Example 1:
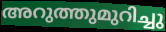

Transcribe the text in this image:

അറുത്തുമുറിച്ചു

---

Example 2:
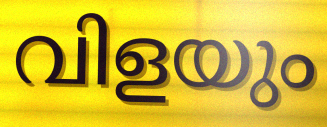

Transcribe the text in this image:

വിളയും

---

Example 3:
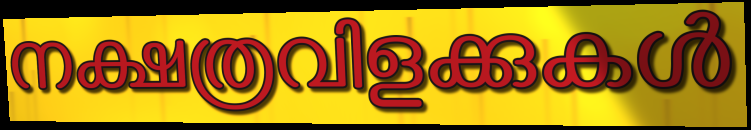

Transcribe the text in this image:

നക്ഷത്രവിളക്കുകൾ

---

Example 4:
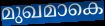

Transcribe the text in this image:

മുഖമാകെ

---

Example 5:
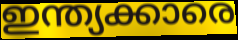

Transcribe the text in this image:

ഇന്ത്യക്കാരെ